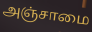
அஞ்சாமை